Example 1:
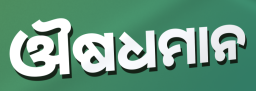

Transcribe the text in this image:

ଔଷଧମାନ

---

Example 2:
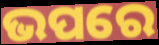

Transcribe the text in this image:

ଭପରେ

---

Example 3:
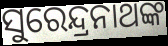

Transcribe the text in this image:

ସୁରେନ୍ଦ୍ରନାଥଙ୍କ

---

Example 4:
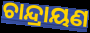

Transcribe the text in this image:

ଚାନ୍ଦ୍ରାୟଣ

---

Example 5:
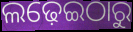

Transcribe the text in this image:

ଲଢ଼େଇଠାରୁ